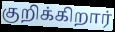
குறிக்கிறார்